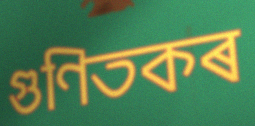
গুণিতকৰ